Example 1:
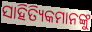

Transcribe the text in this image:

ସାହିତ୍ୟିକମାନଙ୍କୁ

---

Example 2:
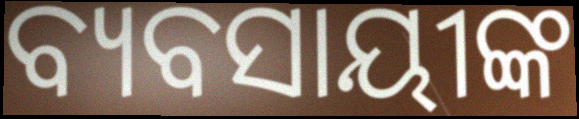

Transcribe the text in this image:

ବ୍ୟବସାୟୀଙ୍କ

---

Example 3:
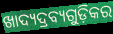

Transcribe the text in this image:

ଖାଦ୍ୟଦ୍ରବ୍ୟଗୁଡ଼ିକର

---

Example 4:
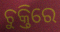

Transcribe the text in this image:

ଚୁକ୍ତିରେ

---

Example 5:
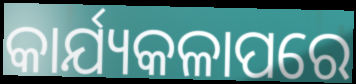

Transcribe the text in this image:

କାର୍ଯ୍ୟକଳାପରେ